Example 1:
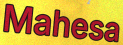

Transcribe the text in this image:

Mahesa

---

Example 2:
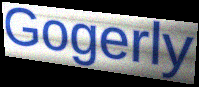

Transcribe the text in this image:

Gogerly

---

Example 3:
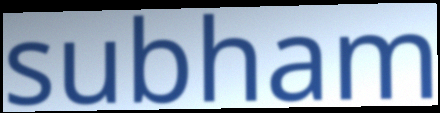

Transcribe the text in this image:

subham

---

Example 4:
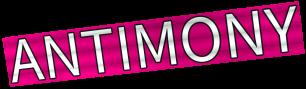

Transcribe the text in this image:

ANTIMONY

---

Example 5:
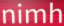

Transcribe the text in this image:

nimh